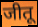
जीतू